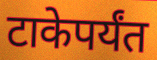
टाकेपर्यंत